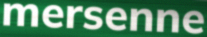
mersenne